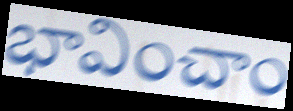
భావించాం